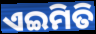
ଏଇମିତି